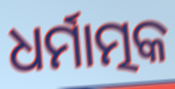
ଧର୍ମାତ୍ମକ